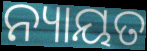
ନ୍ୟାୟତ